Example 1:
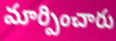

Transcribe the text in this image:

మార్పించారు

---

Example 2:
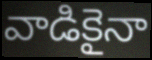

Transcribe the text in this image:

వాడికైనా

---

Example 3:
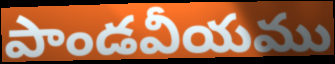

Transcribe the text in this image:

పాండవీయము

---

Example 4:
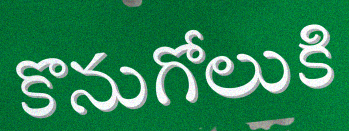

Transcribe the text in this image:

కొనుగోలుకి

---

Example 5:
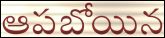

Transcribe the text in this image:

ఆపబోయిన